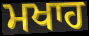
ਮਖਾਹ